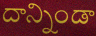
దాన్నిండా